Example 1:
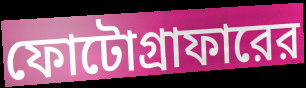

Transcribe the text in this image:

ফোটোগ্রাফারের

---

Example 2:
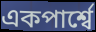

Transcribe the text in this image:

একপার্শ্বে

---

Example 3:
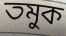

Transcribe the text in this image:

তমুক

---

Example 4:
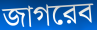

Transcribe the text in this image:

জাগরেব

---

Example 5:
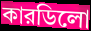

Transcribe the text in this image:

কারডিলো